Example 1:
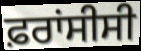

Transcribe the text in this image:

ਫ਼ਰਾਂਸੀਸੀ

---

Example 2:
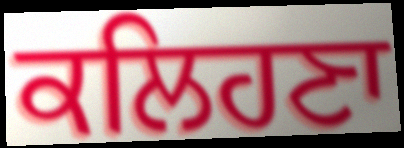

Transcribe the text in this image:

ਕਲਿਹਣਾ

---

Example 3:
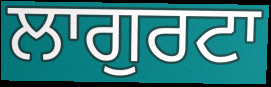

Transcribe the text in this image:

ਲਾਗੁਰਟਾ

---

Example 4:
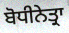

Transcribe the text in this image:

ਬੋਧੀਨੇਤ੍ਰਾ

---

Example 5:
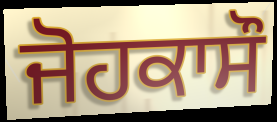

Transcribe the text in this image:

ਜੋਹਕਾਸੌ